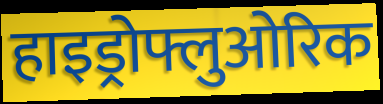
हाइड्रोफ्लुओरिक